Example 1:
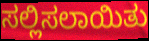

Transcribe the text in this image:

ಸಲ್ಲಿಸಲಾಯಿತು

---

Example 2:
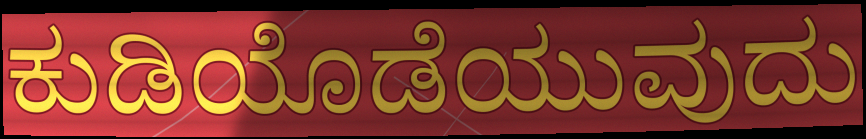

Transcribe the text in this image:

ಕುಡಿಯೊಡೆಯುವುದು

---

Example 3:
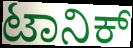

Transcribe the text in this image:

ಟಾನಿಕ್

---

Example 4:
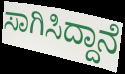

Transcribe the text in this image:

ಸಾಗಿಸಿದ್ದಾನೆ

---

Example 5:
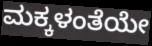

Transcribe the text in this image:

ಮಕ್ಕಳಂತೆಯೇ